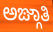
ಅಙ್ಗಾತಿ